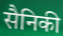
सैनिकी